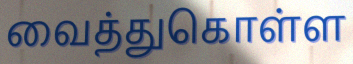
வைத்துகொள்ள